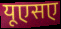
यूएसए